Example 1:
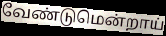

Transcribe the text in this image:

வேண்டுமென்றாய்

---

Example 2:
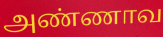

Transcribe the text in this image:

அண்ணாவ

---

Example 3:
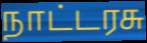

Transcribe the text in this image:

நாட்டரசு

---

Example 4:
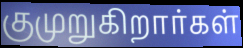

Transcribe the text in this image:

குமுறுகிறார்கள்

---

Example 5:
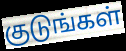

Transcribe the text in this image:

குடுங்கள்